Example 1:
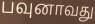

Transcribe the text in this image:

பவுனாவது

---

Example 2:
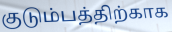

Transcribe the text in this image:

குடும்பத்திற்காக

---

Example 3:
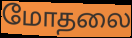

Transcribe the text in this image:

மோதலை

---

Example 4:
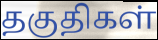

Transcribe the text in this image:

தகுதிகள்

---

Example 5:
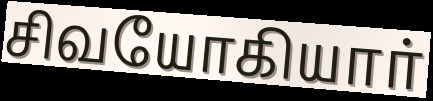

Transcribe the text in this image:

சிவயோகியார்